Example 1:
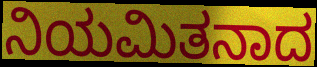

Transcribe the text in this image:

ನಿಯಮಿತನಾದ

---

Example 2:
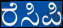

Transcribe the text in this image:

ರೆಸಿಪಿ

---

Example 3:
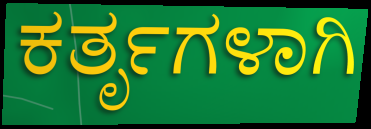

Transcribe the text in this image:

ಕರ್ತೃಗಳಾಗಿ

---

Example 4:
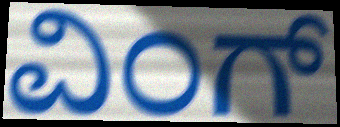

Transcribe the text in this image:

ವಿಂಗ್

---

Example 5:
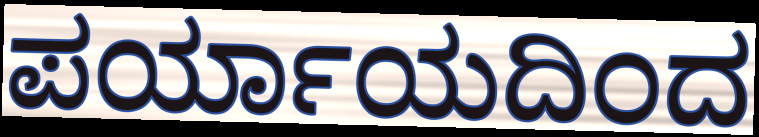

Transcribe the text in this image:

ಪರ್ಯಾಯದಿಂದ